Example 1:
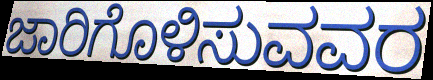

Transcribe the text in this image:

ಜಾರಿಗೊಳಿಸುವವರ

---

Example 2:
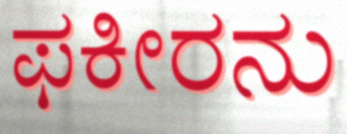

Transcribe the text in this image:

ಫಕೀರನು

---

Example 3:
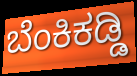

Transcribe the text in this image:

ಬೆಂಕಿಕಡ್ಡಿ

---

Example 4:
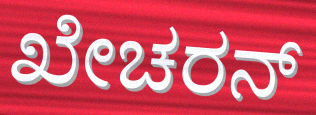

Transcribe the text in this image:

ಖೇಚರನ್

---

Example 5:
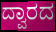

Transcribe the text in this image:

ದ್ವಾರದ